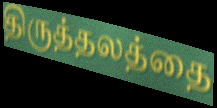
திருத்தலத்தை